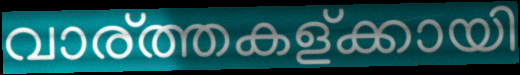
വാര്ത്തകള്ക്കായി